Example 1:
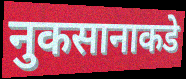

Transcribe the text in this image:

नुकसानाकडे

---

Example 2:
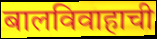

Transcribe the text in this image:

बालविवाहाची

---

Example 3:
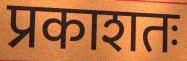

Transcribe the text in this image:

प्रकाशतः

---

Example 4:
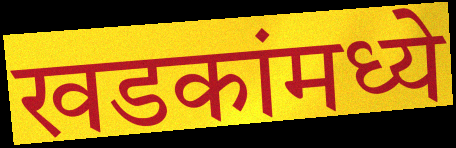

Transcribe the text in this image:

खडकांमध्ये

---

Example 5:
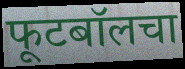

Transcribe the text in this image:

फूटबॉलचा